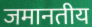
जमानतीय